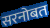
सरनोबत